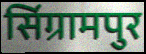
सिंग्रामपुर